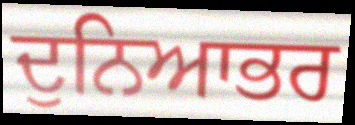
ਦੁਨਿਆਭਰ